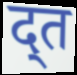
द्त